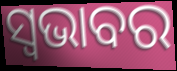
ସ୍ଵଭାବର